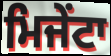
ਮਿਜੇਂਟਾ